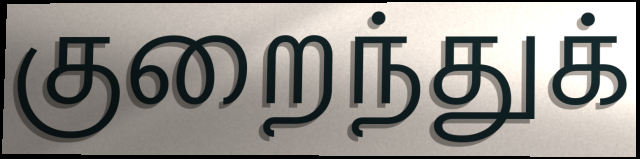
குறைந்துக்